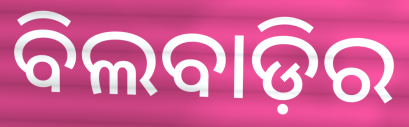
ବିଲବାଡ଼ିର